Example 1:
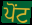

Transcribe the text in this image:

ਪੋਂਟ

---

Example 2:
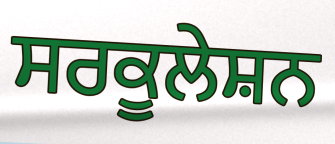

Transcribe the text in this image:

ਸਰਕੂਲੇਸ਼ਨ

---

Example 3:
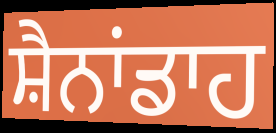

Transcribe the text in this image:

ਸ਼ੈਨਾਂਡਾਹ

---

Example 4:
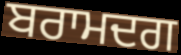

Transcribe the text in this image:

ਬਰਾਮਦਗ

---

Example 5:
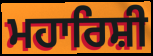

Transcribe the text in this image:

ਮਹਾਰਿਸ਼ੀ